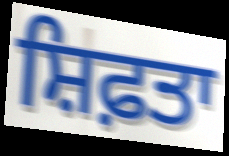
ਸ਼ਿਫ਼ਤਾ